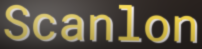
Scanlon